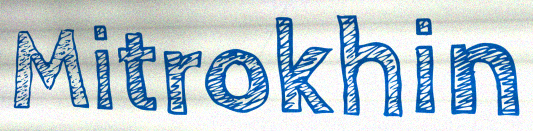
Mitrokhin